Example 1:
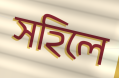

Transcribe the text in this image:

সহিলে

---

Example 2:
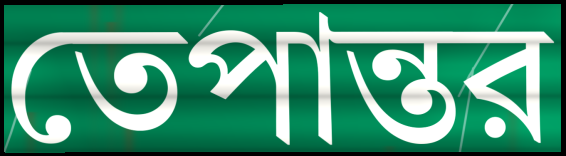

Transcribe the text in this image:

তেপান্তর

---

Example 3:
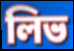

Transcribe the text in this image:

লিভ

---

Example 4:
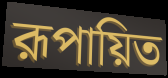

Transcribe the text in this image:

রূপায়িত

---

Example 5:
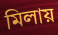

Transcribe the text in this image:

মিলায়